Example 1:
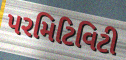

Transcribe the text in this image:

પરમિટિવિટી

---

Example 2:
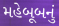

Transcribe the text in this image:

મહેબૂબનું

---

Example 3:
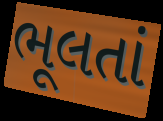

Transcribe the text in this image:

ભૂલતાં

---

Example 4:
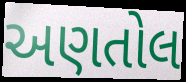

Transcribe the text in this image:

અણતોલ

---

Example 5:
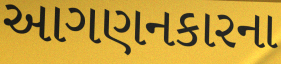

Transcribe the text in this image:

આગણનકારના